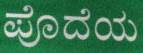
ಪೊದೆಯ